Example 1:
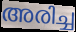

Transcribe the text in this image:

അരിച്ച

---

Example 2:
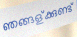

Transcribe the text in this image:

ഞങ്ങള്ക്കുണ്ട്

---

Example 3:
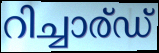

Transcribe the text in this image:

റിച്ചാര്ഡ്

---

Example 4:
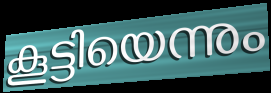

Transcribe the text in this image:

കൂട്ടിയെന്നും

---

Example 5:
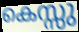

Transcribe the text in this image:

കെസ്സു